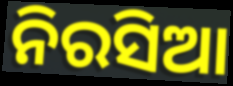
ନିରସିଆ